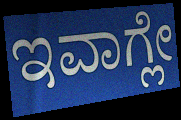
ಇವಾಗ್ಲೇ